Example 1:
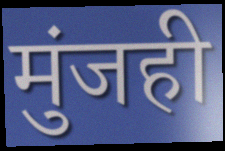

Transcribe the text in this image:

मुंजही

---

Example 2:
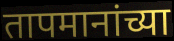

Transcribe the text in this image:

तापमानांच्या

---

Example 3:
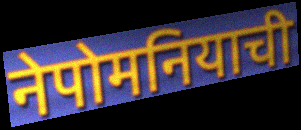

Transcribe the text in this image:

नेपोमनियाची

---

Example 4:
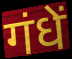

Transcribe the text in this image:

गंधें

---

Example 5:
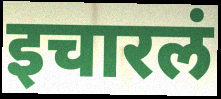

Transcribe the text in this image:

इचारलं